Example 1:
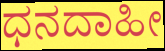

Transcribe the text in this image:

ಧನದಾಹೀ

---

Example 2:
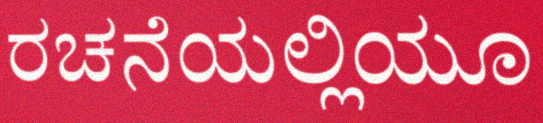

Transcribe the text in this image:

ರಚನೆಯಲ್ಲಿಯೂ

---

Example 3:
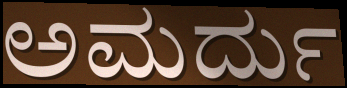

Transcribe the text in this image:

ಅಮರ್ದು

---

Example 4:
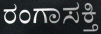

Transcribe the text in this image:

ರಂಗಾಸಕ್ತಿ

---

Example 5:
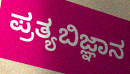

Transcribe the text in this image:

ಪ್ರತ್ಯಬಿಜ್ಞಾನ